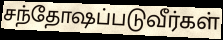
சந்தோஷப்படுவீர்கள்